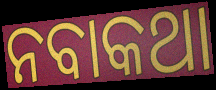
ନବାକଥା